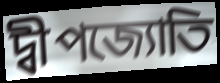
দ্বীপজ্যোতি